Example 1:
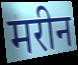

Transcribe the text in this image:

मरीन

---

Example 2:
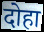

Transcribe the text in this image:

दोहा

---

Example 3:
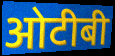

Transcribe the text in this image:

ओटीबी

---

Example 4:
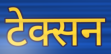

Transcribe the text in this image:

टेक्सन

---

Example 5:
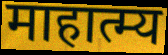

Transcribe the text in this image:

माहात्म्य